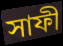
সাফী